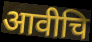
आवीचि